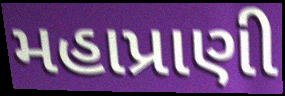
મહાપ્રાણી